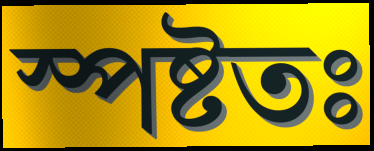
স্পষ্টতঃ